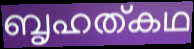
ബൃഹത്കഥ